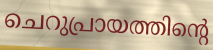
ചെറുപ്രായത്തിന്റെ